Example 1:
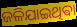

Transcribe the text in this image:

ଜଳିଯାଇଥିଵା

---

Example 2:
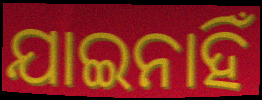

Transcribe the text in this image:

ଯାଇନାହିଁ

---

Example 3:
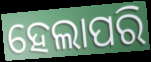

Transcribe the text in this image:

ହେଲାପରି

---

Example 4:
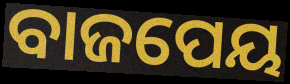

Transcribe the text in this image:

ବାଜପେୟ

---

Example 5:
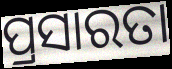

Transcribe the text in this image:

ପ୍ରସାରତା